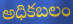
అధికబలం